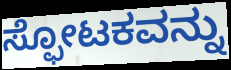
ಸ್ಫೋಟಕವನ್ನು